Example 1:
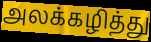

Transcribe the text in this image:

அலக்கழித்து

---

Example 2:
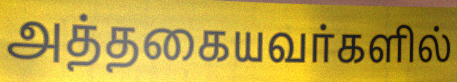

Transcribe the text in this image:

அத்தகையவர்களில்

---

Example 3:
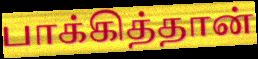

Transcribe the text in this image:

பாக்கித்தான்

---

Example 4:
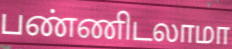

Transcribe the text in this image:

பண்ணிடலாமா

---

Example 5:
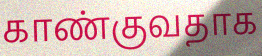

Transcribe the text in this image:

காண்குவதாக